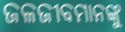
ଜଳଜୀବମାନଙ୍କୁ